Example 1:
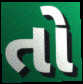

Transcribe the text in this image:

તો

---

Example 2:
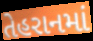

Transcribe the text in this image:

તેહરાનમાં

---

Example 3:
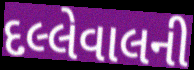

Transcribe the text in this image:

દલ્લેવાલની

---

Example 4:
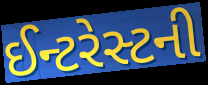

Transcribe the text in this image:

ઈન્ટરેસ્ટની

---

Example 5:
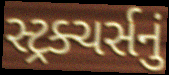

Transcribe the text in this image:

સ્ટ્રક્ચર્સનું